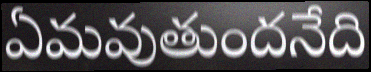
ఏమవుతుందనేది